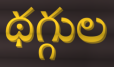
థగ్గుల